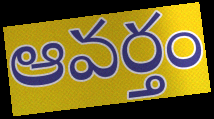
ఆవర్తం